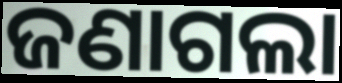
ଜଣାଗଲା